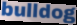
bulldog